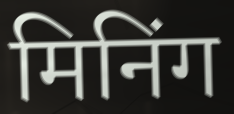
मिनिंग